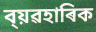
ব্য়ৱহাৰিক